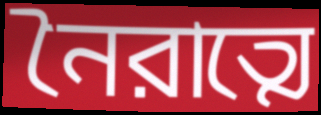
নৈরাত্মে